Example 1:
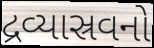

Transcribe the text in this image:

દ્રવ્યાસ્રવનો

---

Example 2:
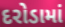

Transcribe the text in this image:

દરોડામાં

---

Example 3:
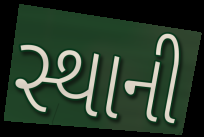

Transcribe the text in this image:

સ્થાની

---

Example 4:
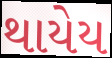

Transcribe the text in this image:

થાયેય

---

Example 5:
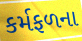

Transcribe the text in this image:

કર્મફળના